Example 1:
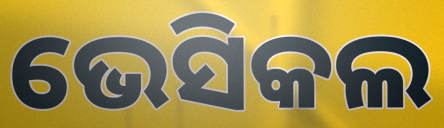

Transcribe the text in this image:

ଭେସିକଲ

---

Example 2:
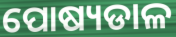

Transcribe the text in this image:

ପୋଷ୍ୟଡାଳ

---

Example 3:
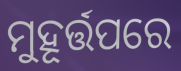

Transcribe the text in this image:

ମୁହୂର୍ତ୍ତପରେ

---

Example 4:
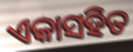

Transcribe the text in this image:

ଏକାସହିତ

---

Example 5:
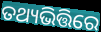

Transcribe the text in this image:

ତଥ୍ୟଭିତ୍ତିରେ